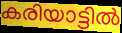
കരിയാട്ടിൽ